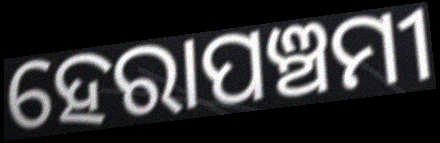
ହେରାପଞ୍ଚମୀ